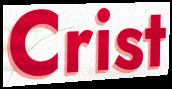
Crist